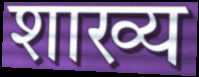
शाख्य